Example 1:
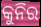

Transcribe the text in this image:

କୁନିର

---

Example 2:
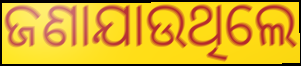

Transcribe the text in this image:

ଜଣାଯାଉଥିଲେ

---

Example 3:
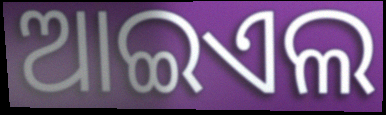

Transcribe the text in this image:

ଆଇଏଲ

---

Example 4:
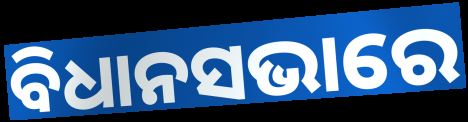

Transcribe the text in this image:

ବିଧାନସଭାରେ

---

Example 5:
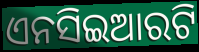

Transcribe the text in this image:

ଏନସିଇଆରଟି